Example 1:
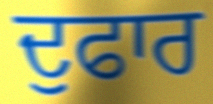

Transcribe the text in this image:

ਦੁਫਾਰ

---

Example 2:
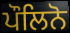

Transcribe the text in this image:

ਪੌਲਿਨੋ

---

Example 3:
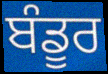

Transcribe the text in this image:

ਬੰਡੂਰ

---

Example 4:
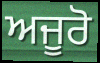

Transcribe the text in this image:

ਅਜੂਰੋ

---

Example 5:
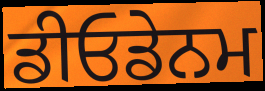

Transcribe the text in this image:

ਡੀਓਡੇਨਮ